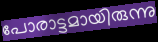
പോരാട്ടമായിരുന്നു